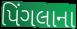
પિંગલાના